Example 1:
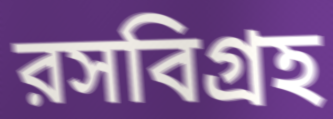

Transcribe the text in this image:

রসবিগ্রহ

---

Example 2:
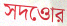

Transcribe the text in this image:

সদওোর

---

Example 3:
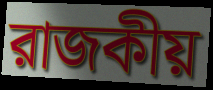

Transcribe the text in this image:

রাজকীয়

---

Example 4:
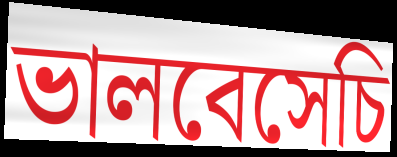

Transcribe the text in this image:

ভালবেসেচি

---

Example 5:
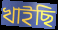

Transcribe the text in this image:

খাইছি